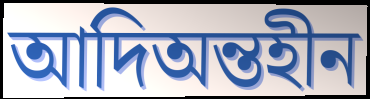
আদিঅন্তহীন